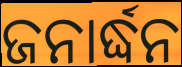
ଜନାର୍ଦ୍ଧନ